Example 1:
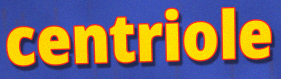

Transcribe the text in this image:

centriole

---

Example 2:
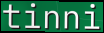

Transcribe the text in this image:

tinni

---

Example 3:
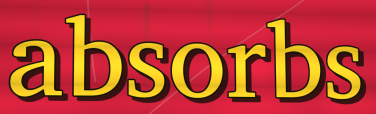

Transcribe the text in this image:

absorbs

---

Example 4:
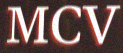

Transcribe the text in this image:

MCV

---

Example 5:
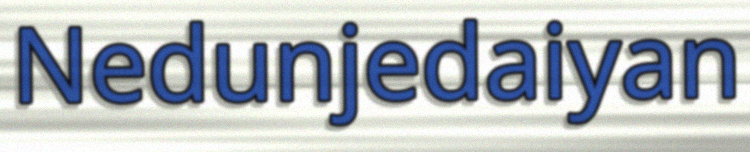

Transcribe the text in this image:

Nedunjedaiyan